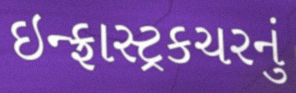
ઇન્ફ્રાસ્ટ્રકચરનું